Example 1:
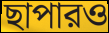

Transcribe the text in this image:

ছাপারও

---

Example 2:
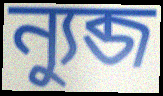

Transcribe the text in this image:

ন্যুব্জ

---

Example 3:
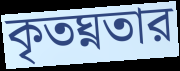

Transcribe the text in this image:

কৃতঘ্নতার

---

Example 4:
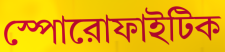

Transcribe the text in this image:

স্পোরোফাইটিক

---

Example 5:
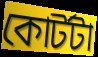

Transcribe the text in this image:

কোর্টটা